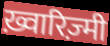
ख़्वारिज़्मी